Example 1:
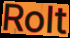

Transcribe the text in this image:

Rolt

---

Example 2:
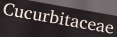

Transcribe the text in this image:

Cucurbitaceae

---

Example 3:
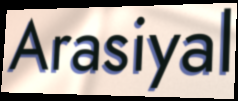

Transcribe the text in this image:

Arasiyal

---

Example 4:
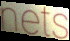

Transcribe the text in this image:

nets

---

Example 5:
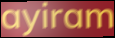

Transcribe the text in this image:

ayiram